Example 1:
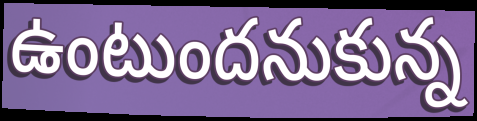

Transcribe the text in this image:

ఉంటుందనుకున్న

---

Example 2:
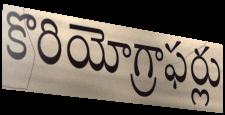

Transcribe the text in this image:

కొరియోగ్రాఫర్లు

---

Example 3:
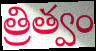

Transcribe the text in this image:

త్రిత్వం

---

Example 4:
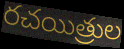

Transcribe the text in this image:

రచయిత్రుల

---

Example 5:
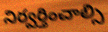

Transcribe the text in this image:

నిర్వర్తించాల్సి